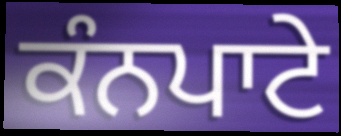
ਕੰਨਪਾਟੇ